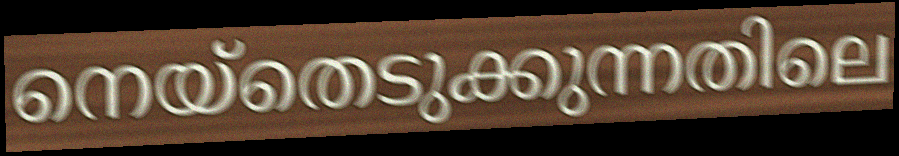
നെയ്തെടുക്കുന്നതിലെ